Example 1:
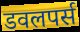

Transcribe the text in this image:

डवलपर्स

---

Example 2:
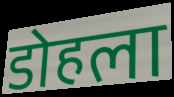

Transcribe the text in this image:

डोहला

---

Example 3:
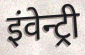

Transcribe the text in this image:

इंवेन्ट्री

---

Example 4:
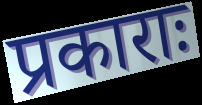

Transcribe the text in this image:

प्रकाराः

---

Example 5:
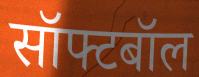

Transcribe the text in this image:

सॉफ्टबॉल